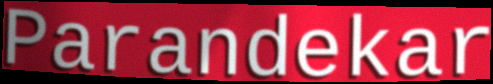
Parandekar